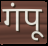
गंपू